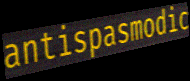
antispasmodic